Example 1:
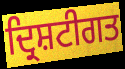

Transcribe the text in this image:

ਦ੍ਰਿਸ਼ਟੀਗਤ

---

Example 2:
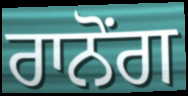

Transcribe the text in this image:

ਰਾਨੋਂਗ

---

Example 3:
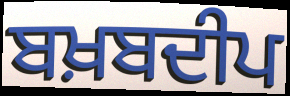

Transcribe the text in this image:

ਬਖ਼ਬਦੀਪ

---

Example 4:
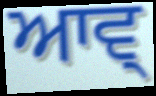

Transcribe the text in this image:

ਆਵ੍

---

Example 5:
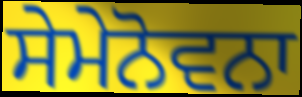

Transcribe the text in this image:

ਸੇਮੇਨੋਵਨਾ